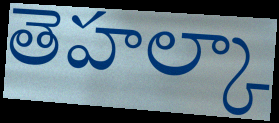
తెహల్కా